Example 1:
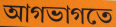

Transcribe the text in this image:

আগভাগতে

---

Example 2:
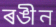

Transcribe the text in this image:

ৰঙীন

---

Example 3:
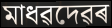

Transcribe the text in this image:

মাধৱদেৱৰ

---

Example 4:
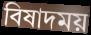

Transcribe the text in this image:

বিষাদময়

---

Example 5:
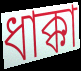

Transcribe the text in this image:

ধাক্কা